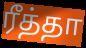
ரீத்தா